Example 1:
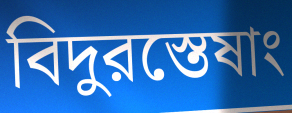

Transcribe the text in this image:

বিদুরস্তেষাং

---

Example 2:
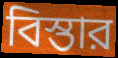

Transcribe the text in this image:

বিস্তার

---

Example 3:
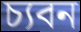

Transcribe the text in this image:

চ্যবন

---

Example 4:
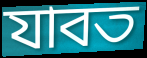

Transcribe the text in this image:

যাবত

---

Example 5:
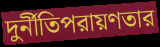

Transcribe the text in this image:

দুর্নীতিপরায়ণতার